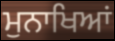
ਮੁਨਾਖਿਆਂ